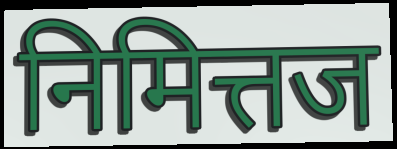
निमित्तज